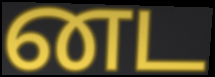
னட